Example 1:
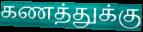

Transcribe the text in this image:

கணத்துக்கு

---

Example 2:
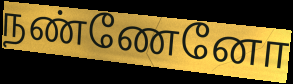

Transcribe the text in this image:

நண்ணேனோ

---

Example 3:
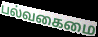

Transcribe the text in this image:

பல்வகைமை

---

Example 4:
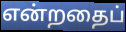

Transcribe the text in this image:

என்றதைப்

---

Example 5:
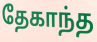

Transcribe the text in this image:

தேகாந்த